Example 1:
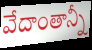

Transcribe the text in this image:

వేదాంతాన్నీ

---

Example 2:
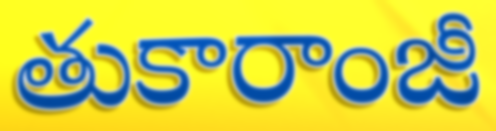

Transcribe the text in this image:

తుకారాంజీ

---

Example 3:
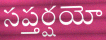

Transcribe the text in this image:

సప్తర్షయో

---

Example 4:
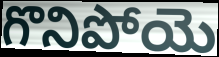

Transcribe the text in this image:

గొనిపోయె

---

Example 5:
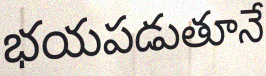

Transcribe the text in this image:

భయపడుతూనే